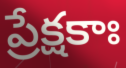
ప్రేక్షకాః